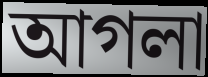
আগলা